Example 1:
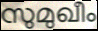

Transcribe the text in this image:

സുമുഖീം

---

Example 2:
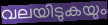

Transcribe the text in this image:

വലയിടുകയും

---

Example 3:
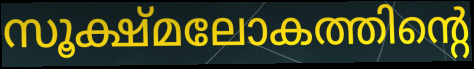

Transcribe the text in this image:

സൂക്ഷ്മലോകത്തിന്റെ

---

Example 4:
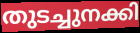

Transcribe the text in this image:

തുടച്ചുനക്കി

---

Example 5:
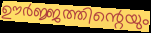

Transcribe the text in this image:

ഊർജ്ജത്തിന്റെയും